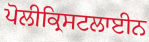
ਪੋਲੀਕ੍ਰਿਸਟਲਾਈਨ